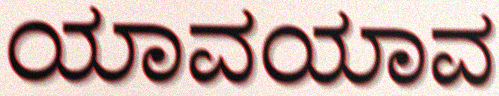
ಯಾವಯಾವ